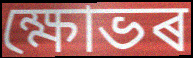
ক্ষোভৰ